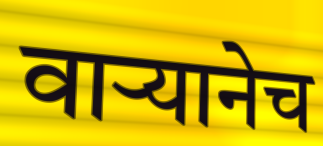
वाऱ्यानेच